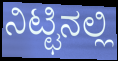
ನಿಟ್ಟಿನಲ್ಲಿ